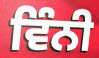
ਵਿੰਨੀ